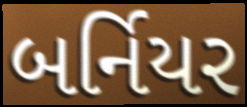
બર્નિયર